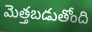
మెత్తబడుతోంది